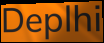
Deplhi